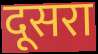
दूसरा